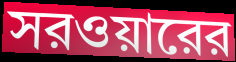
সরওয়ারের